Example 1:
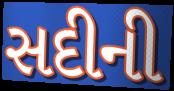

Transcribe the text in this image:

સદીની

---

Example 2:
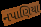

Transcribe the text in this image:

નપાણિયા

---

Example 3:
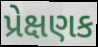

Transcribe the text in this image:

પ્રેક્ષણક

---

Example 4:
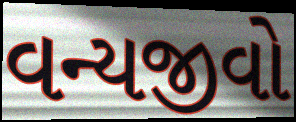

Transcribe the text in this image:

વન્યજીવો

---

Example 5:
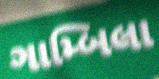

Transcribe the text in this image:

ગામ્બિલા